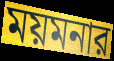
ময়মনার